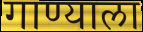
गाण्याला